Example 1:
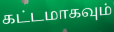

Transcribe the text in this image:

கட்டமாகவும்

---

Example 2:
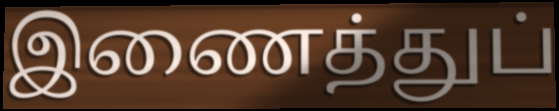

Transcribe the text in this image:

இணைத்துப்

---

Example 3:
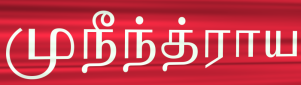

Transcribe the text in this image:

முநீந்த்ராய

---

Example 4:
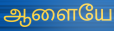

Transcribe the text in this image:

ஆளையே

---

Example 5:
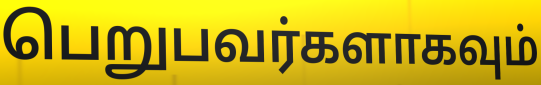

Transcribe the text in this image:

பெறுபவர்களாகவும்